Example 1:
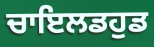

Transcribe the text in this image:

ਚਾਇਲਡਹੁਡ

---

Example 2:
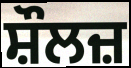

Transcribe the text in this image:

ਸ਼ੌਲਜ਼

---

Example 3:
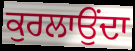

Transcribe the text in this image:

ਕੁਰਲਾਉਂਦਾ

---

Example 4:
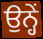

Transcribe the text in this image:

ਉਨ੍ਹੇਂ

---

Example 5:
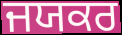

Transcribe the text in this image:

ਜਯਕਰ